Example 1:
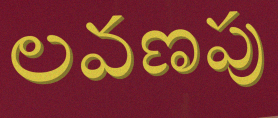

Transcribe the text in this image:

లవణపు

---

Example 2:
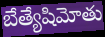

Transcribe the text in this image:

బేత్యేషిమోతు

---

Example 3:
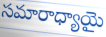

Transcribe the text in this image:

సమారాధ్యాయై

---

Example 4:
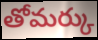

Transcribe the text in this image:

తోమర్కు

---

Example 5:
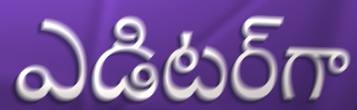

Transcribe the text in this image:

ఎడిటర్‌గా